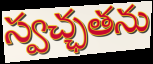
స్వచ్ఛతను